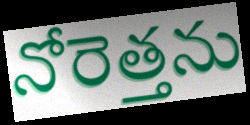
నోరెత్తను